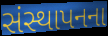
સંસ્થાપનના